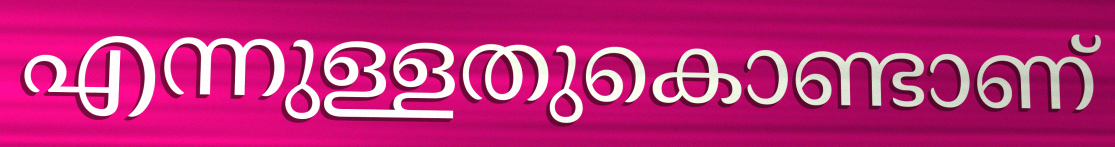
എന്നുള്ളതുകൊണ്ടാണ്